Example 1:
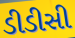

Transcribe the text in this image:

ડીડીસી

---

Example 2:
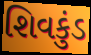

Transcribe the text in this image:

શિવકુંડ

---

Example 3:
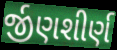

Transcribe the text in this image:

ર્જીણશીર્ણ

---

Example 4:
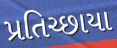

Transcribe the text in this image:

પ્રતિચ્છાયા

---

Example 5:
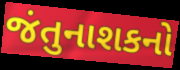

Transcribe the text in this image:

જંતુનાશકનો